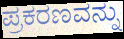
ಪ್ರಕರಣವನ್ನು